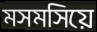
মসমসিয়ে